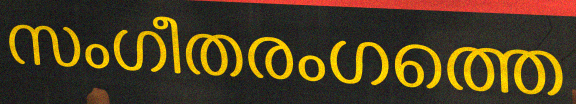
സംഗീതരംഗത്തെ